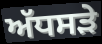
ਅੱਧਸੜੇ